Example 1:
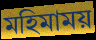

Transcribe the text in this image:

মহিমাময়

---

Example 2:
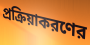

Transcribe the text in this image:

প্রক্রিয়াকরণের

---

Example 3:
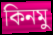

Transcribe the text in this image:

কিনমু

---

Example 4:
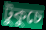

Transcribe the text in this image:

টুকুচে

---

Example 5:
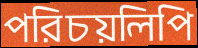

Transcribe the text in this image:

পরিচয়লিপি